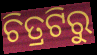
ଚିତ୍ରଟିରୁ